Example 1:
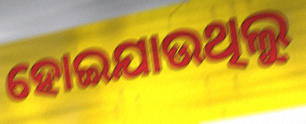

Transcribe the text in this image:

ହୋଇଯାଉଥିଲୁ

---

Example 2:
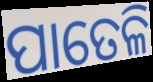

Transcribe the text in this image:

ପାତେଳି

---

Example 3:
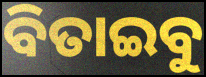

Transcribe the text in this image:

ବିତାଇବୁ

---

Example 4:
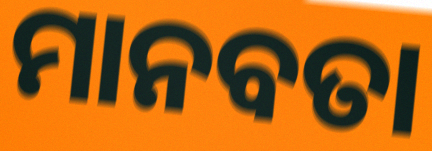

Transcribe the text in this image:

ମାନବତା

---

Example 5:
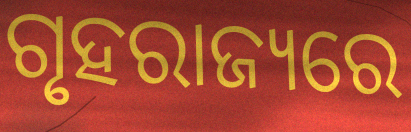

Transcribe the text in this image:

ଗୃହରାଜ୍ୟରେ